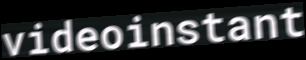
videoinstant